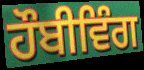
ਹੌਬੀਵਿੰਗ